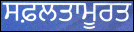
ਸਫ਼ਲਤਾਮੂਰਤ